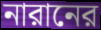
নারানের